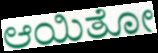
ಆಯಿತೋ